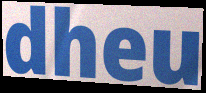
dheu